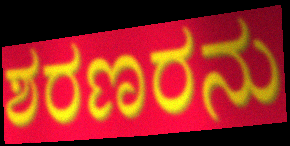
ಶರಣರನು